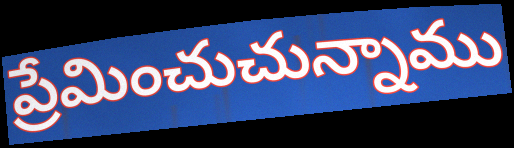
ప్రేమించుచున్నాము